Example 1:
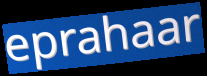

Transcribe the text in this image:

eprahaar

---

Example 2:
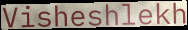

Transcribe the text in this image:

Visheshlekh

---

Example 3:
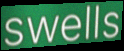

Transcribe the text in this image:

swells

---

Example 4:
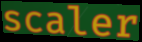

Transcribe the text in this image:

scaler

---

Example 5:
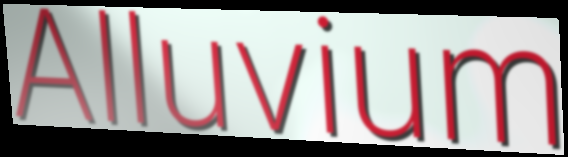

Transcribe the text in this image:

Alluvium